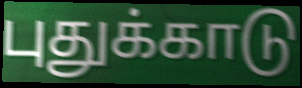
புதுக்காடு